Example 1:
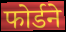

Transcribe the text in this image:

फोर्डने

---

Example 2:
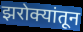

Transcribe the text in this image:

झरोक्यांतून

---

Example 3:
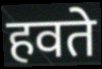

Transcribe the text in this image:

हवते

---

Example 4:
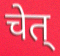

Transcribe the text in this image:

चेत्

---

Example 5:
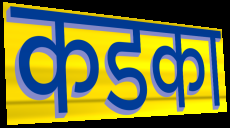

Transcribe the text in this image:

कडका